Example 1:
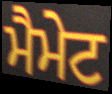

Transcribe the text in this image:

ਮੈਮੇਟ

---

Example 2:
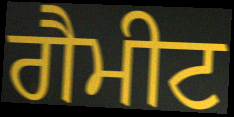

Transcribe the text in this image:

ਗੈਮੀਟ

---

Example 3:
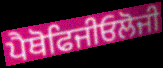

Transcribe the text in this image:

ਪੈਥੋਫਿਜੀਓਲੋਜੀ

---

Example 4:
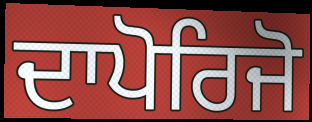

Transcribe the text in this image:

ਦਾਪੋਰਿਜੋ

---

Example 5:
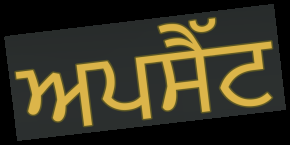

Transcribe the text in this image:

ਅਪਸੈੱਟ